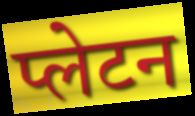
प्लेटन